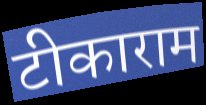
टीकाराम